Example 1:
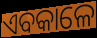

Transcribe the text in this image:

ଏବକାଳେ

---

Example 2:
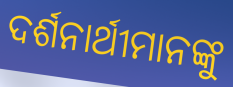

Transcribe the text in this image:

ଦର୍ଶନାର୍ଥୀମାନଙ୍କୁ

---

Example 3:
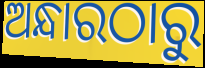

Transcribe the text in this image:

ଅନ୍ଧାରଠାରୁ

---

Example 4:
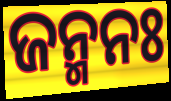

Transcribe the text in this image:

ଜନ୍ମନଃ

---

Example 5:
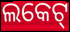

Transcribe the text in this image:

ଲକେଟ୍